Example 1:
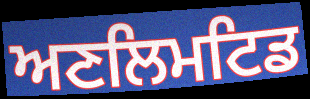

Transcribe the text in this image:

ਅਣਲਿਮਟਿਡ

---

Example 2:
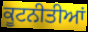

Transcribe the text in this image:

ਕੂਟਨੀਤੀਆਂ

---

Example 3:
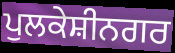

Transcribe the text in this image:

ਪੁਲਕੇਸ਼ੀਨਗਰ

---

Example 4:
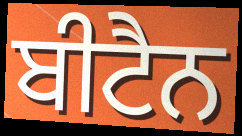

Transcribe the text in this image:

ਬੀਟੈਨ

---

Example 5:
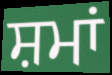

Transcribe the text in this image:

ਸ਼ਮਾਂ